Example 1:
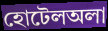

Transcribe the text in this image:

হোটেলঅলা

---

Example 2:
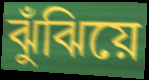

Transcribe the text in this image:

ঝুঁঝিয়ে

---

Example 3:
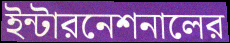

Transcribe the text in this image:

ইন্টারনেশনালের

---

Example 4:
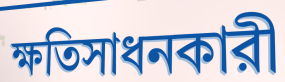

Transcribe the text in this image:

ক্ষতিসাধনকারী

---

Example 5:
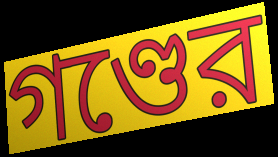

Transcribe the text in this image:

গণ্ডের